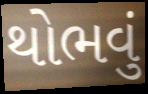
થોભવું